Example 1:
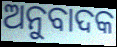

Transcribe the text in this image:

ଅନୁବାଦକ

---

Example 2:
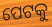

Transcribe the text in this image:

ପେଟକୁ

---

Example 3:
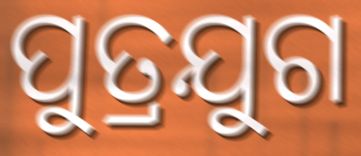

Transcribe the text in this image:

ପୁତ୍ରଯୁଗ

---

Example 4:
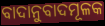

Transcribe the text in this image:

ବାଦାନୁବାଦମୂଳକ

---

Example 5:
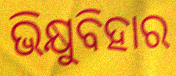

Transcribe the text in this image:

ଭିକ୍ଷୁବିହାର